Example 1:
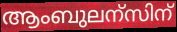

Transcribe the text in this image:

ആംബുലന്സിന്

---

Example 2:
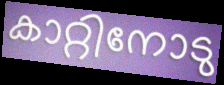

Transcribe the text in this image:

കാറ്റിനോടു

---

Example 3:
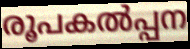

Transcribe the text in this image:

രൂപകൽപ്പന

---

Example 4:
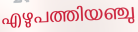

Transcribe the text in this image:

എഴുപത്തിയഞ്ചു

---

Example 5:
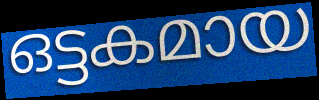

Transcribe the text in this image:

ഒട്ടകമായ